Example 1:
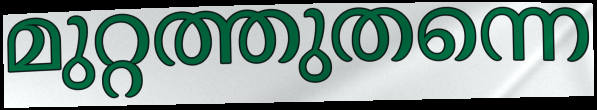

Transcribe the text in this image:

മുറ്റത്തുതന്നെ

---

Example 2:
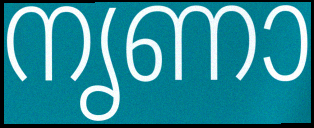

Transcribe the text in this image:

നൃണാ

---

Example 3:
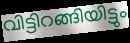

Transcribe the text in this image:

വിട്ടിറങ്ങിയിട്ടും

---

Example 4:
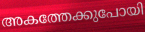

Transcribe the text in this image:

അകത്തേക്കുപോയി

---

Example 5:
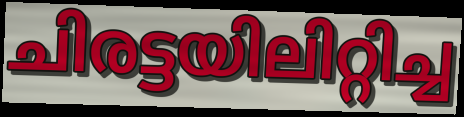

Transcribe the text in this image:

ചിരട്ടയിലിറ്റിച്ച